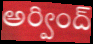
అర్వింద్